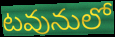
టవునులో